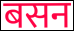
बसन